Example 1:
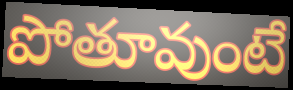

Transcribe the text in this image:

పోతూవుంటే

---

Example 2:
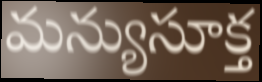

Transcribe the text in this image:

మన్యుసూక్త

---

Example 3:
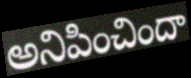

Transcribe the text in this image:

అనిపించిందా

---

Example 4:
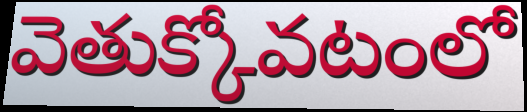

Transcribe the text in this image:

వెతుక్కోవటంలో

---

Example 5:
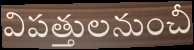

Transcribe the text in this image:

విపత్తులనుంచీ